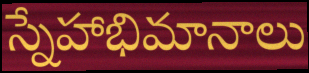
స్నేహాభిమానాలు